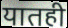
यातही